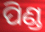
ପିଣ୍ଡ